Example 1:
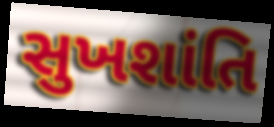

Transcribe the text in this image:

સુખશાંતિ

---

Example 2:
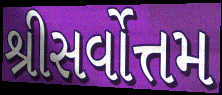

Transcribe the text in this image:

શ્રીસર્વોત્તમ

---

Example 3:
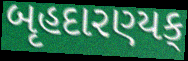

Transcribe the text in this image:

બૃહદારણ્યક્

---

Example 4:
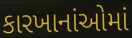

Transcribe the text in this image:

કારખાનાંઓમાં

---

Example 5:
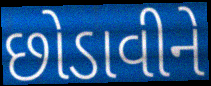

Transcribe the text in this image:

છોડાવીને